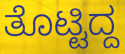
ತೊಟ್ಟಿದ್ದ